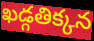
ఖడ్గతిక్కన